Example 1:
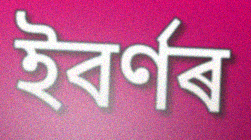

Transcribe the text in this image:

ইবৰ্ণৰ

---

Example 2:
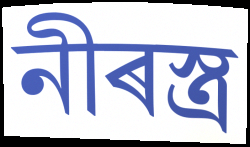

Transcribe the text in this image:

নীৰস্ত্ৰ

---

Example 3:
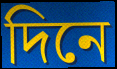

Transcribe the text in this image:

দিনে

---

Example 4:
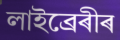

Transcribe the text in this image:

লাইব্ৰেৰীৰ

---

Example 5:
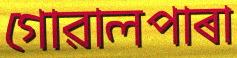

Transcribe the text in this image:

গোৱালপাৰা